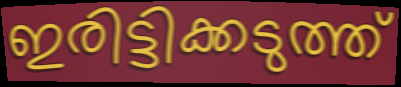
ഇരിട്ടിക്കടുത്ത്